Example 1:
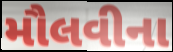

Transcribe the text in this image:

મૌલવીના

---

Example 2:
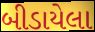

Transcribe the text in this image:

બીડાયેલા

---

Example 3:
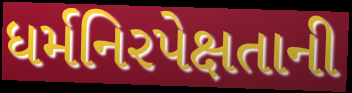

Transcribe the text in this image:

ધર્મનિરપેક્ષતાની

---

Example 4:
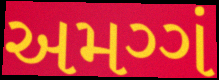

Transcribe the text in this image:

અમગ્ગં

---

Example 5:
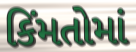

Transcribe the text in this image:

કિંમતોમાં